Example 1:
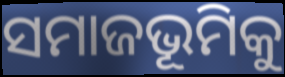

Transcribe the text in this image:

ସମାଜଭୂମିକୁ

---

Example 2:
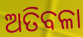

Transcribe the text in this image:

ଅତିବଳା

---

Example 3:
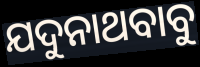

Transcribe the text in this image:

ଯଦୁନାଥବାବୁ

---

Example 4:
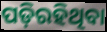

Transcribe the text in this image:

ପଡ଼ିରହିଥିବା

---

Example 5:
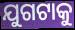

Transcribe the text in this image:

ଯୁଗଟାକୁ